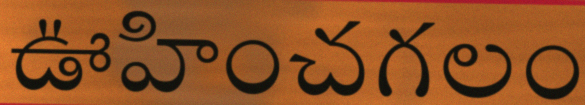
ఊహించగలం